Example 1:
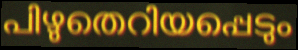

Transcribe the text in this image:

പിഴുതെറിയപ്പെടും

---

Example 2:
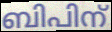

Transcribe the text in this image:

ബിപിന്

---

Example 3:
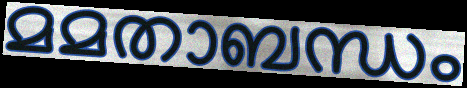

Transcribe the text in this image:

മമതാബന്ധം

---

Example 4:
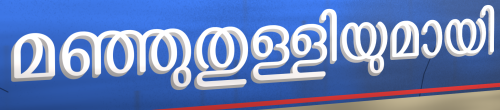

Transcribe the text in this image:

മഞ്ഞുതുള്ളിയുമായി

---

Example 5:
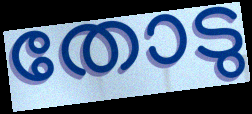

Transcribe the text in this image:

തോടു